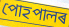
পোহপালৰ